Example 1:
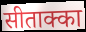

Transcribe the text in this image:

सीताक्का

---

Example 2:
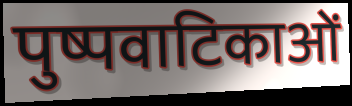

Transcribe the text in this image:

पुष्पवाटिकाओं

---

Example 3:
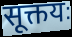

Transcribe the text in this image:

सूक्तयः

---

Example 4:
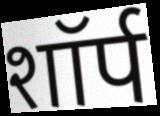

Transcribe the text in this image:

शॉर्प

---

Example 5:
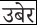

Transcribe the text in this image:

उबेर